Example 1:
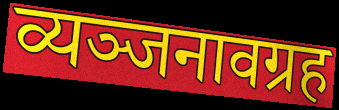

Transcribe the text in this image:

व्यञ्जनावग्रह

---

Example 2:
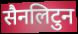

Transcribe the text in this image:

सैनलिटुन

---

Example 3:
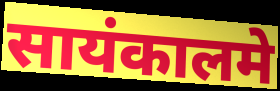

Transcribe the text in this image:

सायंकालमे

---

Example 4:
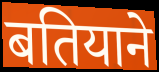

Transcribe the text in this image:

बतियाने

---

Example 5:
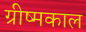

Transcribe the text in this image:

ग्रीष्मकाल